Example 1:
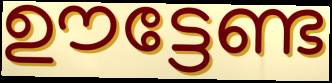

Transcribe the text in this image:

ഊട്ടേണ്ട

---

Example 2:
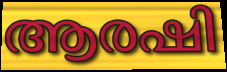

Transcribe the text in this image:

ആരഷി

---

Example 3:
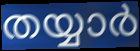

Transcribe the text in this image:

തയ്യാർ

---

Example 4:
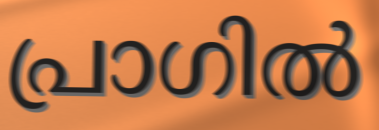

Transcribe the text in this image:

പ്രാഗിൽ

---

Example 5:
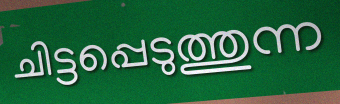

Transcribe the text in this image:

ചിട്ടപ്പെടുത്തുന്ന